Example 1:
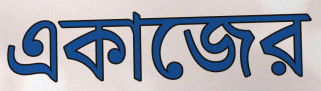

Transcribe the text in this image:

একাজের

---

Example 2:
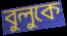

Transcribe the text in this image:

বুলুকে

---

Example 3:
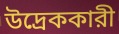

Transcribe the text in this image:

উদ্রেককারী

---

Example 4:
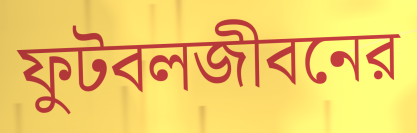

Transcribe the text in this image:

ফুটবলজীবনের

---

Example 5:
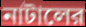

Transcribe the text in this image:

নাটালের